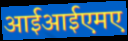
आईआईएमए